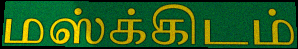
மஸ்க்கிடம்